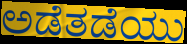
ಅಡೆತಡೆಯು